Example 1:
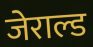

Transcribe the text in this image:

जेराल्ड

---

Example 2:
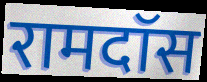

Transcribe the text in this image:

रामदॉस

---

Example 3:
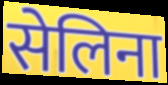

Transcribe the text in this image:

सेलिना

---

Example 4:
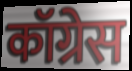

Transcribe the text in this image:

कॉग्रेस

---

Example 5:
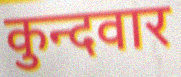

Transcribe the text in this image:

कुन्दवार